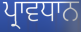
ਪ੍ਰਾਵਧਾਨ